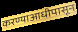
करण्याआधीपासून